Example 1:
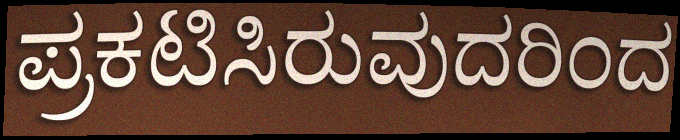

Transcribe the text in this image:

ಪ್ರಕಟಿಸಿರುವುದರಿಂದ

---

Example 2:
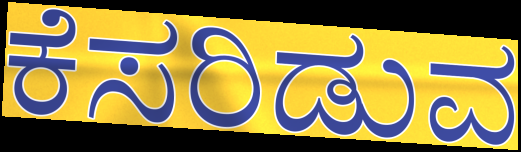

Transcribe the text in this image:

ಕೆಸರಿಡುವ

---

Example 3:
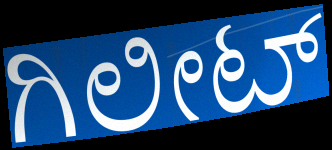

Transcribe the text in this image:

ಗಿಲೀಟ್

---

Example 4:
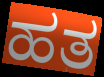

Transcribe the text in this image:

ಹತ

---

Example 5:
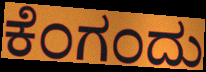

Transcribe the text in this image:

ಕೆಂಗಂದು